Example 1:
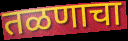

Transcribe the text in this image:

तळणाचा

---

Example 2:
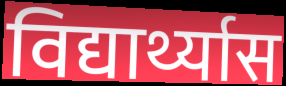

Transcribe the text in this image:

विद्यार्थ्यास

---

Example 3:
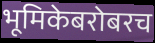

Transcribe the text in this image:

भूमिकेबरोबरच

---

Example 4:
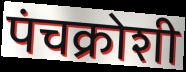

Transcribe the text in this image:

पंचक्रोशी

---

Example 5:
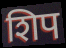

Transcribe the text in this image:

शिप